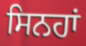
ਸਿਨਹਾਂ